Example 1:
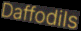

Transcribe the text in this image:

Daffodils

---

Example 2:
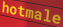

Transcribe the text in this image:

hotmale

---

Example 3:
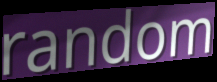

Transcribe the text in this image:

random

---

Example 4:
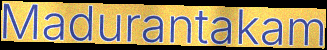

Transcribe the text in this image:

Madurantakam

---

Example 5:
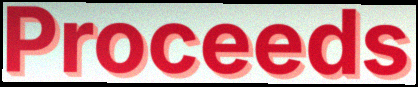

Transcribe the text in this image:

Proceeds